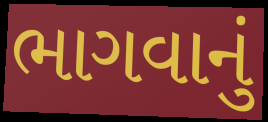
ભાગવાનું